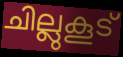
ചില്ലുകൂട്